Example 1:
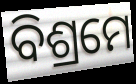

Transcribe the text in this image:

ବିଶ୍ରମେ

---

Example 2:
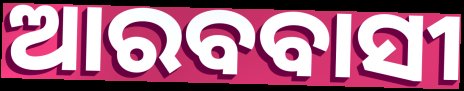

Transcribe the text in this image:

ଆରବବାସୀ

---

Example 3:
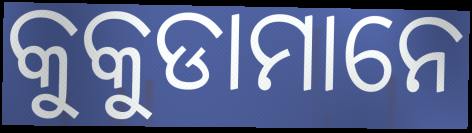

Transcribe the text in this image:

କୁକୁଡାମାନେ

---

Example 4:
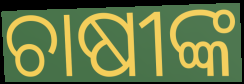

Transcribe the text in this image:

ଚାଷୀଙ୍କ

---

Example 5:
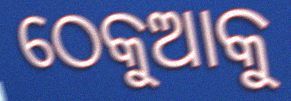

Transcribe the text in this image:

ଠେକୁଆକୁ